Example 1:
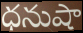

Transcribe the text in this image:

ధనుషా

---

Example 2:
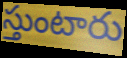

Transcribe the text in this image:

స్తుంటారు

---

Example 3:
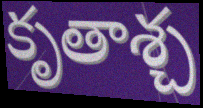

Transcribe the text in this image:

కృతాశ్చ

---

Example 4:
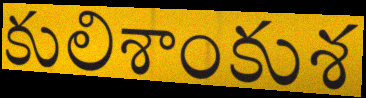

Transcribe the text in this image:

కులిశాంకుశ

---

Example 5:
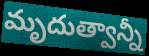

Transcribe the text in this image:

మృదుత్వాన్నీ